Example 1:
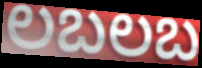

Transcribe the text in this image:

లబలబ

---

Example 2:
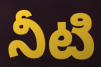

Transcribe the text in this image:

నీటి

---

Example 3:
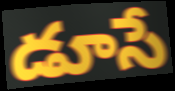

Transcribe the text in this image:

డూసే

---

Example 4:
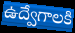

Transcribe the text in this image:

ఉద్వేగాలకి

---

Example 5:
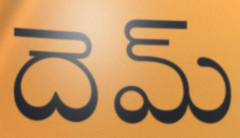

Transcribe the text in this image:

దెమ్